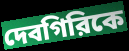
দেবগিরিকে